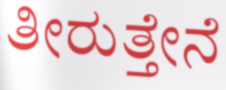
ತೀರುತ್ತೇನೆ